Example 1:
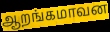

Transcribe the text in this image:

ஆறங்கமாவன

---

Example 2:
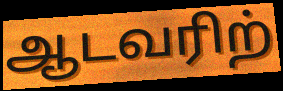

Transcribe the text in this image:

ஆடவரிற்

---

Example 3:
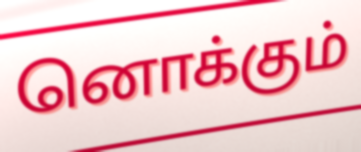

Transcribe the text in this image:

னொக்கும்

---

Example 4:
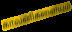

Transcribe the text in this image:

காலனிகளையும்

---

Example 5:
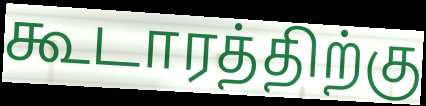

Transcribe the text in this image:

கூடாரத்திற்கு